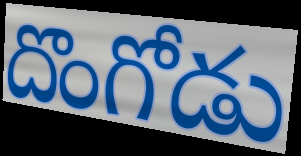
దొంగోడు